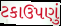
ટકાઉપણું